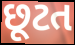
છૂટત